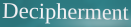
Decipherment